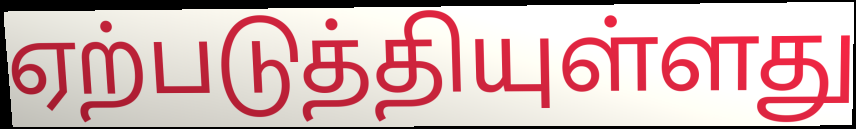
ஏற்படுத்தியுள்ளது